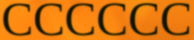
CCCCCC